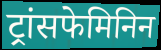
ट्रांसफेमिनिन